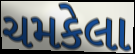
ચમકેલા